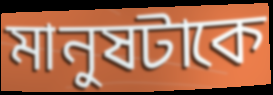
মানুষটাকে